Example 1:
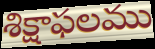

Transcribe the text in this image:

శిక్షాఫలము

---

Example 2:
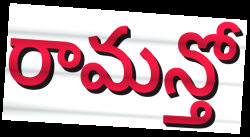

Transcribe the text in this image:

రామన్తో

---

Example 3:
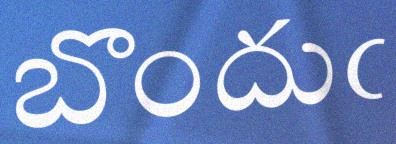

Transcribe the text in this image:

బొందుఁ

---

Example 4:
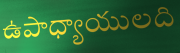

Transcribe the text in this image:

ఉపాధ్యాయులది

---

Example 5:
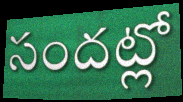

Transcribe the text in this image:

సందట్లో